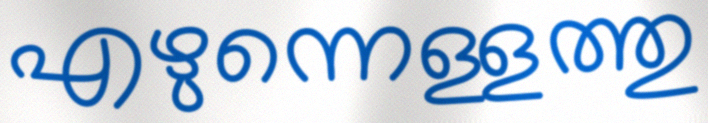
എഴുന്നെള്ളത്തു